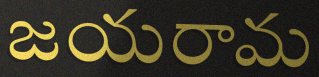
జయరామ